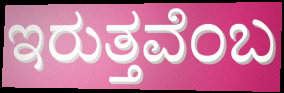
ಇರುತ್ತವೆಂಬ